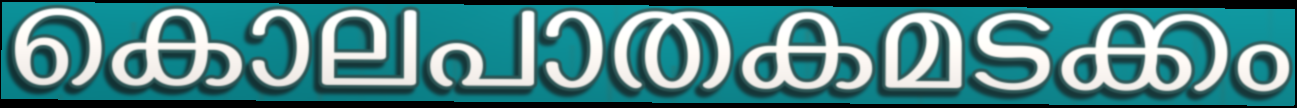
കൊലപാതകമടക്കം